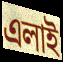
এলাই